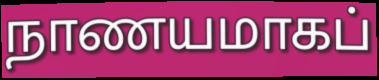
நாணயமாகப்